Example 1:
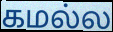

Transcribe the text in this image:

கமல்ல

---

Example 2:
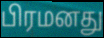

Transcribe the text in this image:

பிரமனது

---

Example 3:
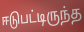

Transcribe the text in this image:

ஈடுபட்டிருந்த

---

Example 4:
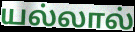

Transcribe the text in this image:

யல்லால்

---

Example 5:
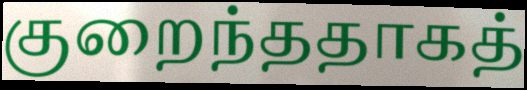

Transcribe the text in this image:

குறைந்ததாகத்